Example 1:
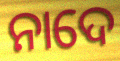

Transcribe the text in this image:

ନାଦେ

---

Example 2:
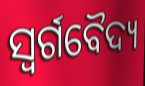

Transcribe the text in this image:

ସ୍ୱର୍ଗବୈଦ୍ୟ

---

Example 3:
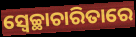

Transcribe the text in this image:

ସ୍ୱେଚ୍ଛାଚାରିତାରେ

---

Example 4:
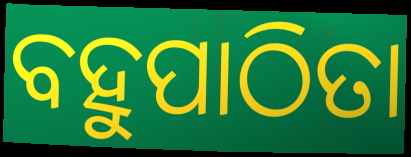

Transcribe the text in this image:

ବହୁପାଠିତା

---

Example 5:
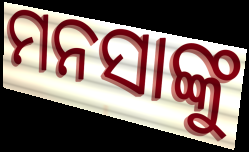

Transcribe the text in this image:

ମନସାଙ୍କୁ